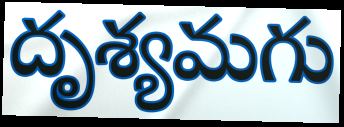
దృశ్యమగు